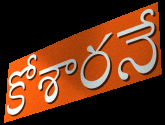
కోశారనే